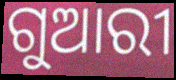
ଗୁଆରୀ